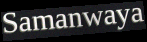
Samanwaya